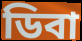
ডিবা